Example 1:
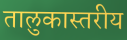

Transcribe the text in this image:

तालुकास्तरीय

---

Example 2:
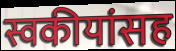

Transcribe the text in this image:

स्वकीयांसह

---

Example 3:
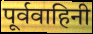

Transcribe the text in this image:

पूर्ववाहिनी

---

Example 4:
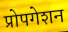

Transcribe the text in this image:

प्रोपगेशन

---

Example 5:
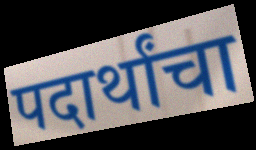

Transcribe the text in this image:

पदार्थांचा